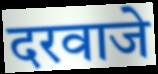
दरवाजे